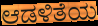
ಆಡಳಿತೆಯ